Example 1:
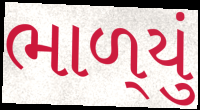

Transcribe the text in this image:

ભાળ્‌યું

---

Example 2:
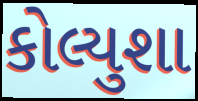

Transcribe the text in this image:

કોલ્યુશા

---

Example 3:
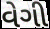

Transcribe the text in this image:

વેગી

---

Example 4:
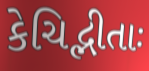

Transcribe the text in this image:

કેચિદ્ભીતાઃ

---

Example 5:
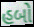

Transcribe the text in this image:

હબો